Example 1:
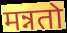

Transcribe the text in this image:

मन्नतो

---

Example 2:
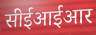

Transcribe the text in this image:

सीईआईआर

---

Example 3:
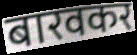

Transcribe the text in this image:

बारवकर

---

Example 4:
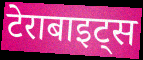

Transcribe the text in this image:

टेराबाइट्स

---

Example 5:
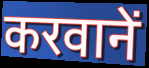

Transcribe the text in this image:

करवानें